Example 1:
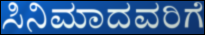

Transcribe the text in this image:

ಸಿನಿಮಾದವರಿಗೆ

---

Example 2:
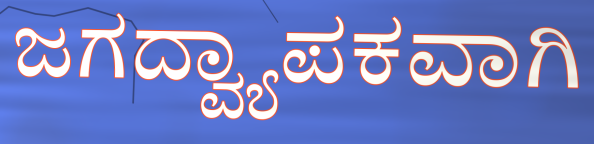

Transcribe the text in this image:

ಜಗದ್ವ್ಯಾಪಕವಾಗಿ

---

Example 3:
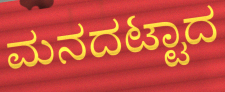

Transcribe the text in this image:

ಮನದಟ್ಟಾದ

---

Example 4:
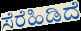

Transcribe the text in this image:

ಸೆರೆಹಿಡಿದೆ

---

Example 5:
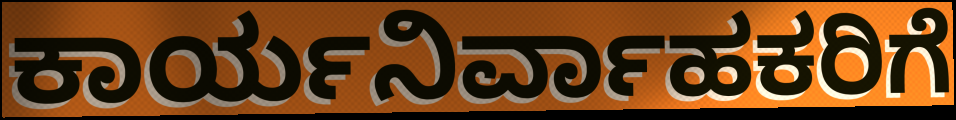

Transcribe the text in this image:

ಕಾರ್ಯನಿರ್ವಾಹಕರಿಗೆ